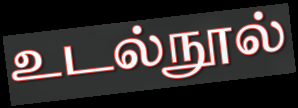
உடல்நூல்